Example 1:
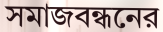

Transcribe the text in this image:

সমাজবন্ধনের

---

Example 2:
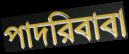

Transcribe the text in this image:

পাদরিবাবা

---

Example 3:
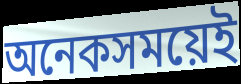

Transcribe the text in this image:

অনেকসময়েই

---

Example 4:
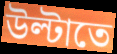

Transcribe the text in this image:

উল্টাতে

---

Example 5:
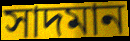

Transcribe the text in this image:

সাদমান